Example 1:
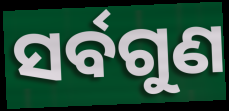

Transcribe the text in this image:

ସର୍ବଗୁଣ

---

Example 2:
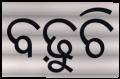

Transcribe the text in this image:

ବଢ଼ୁଚି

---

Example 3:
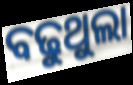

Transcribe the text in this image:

ବଢୁଥୁଲା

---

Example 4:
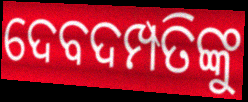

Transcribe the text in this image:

ଦେବଦମ୍ପତିଙ୍କୁ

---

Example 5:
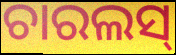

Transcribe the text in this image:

ଚାରଲସ୍